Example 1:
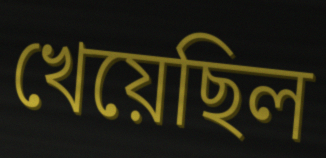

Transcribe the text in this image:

খেয়েছিল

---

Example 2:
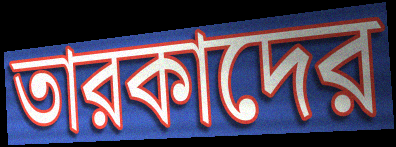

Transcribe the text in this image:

তারকাদের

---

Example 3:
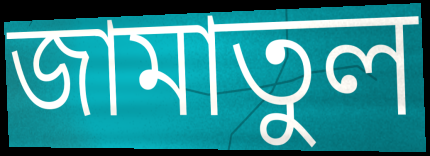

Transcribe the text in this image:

জামাতুল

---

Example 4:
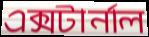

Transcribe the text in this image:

এক্সটার্নাল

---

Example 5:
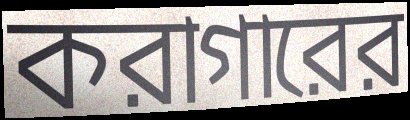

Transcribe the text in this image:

করাগারের